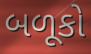
બળૂકો